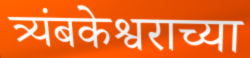
त्र्यंबकेश्वराच्या